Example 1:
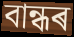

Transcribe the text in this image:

বান্ধৰ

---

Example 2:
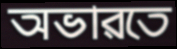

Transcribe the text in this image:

অভাৱতে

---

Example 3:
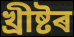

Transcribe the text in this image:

খ্ৰীষ্টৰ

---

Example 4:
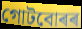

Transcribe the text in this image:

গোটবোৰৰ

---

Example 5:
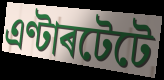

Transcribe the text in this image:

এণ্টাৰটেটে